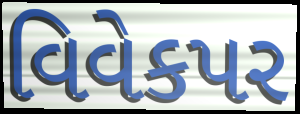
વિવેકપર